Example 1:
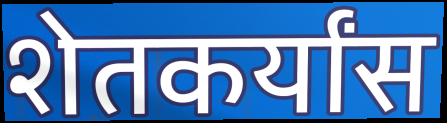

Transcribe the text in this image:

शेतकर्यांस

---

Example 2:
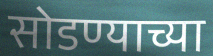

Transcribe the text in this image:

सोडण्याच्या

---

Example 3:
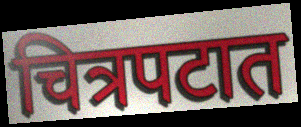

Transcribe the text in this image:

चित्रपटात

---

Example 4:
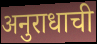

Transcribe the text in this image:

अनुराधाची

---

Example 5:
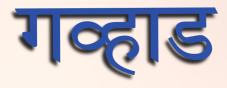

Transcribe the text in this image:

गव्हाड